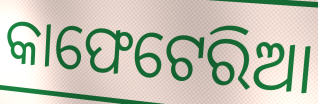
କାଫେଟେରିଆ